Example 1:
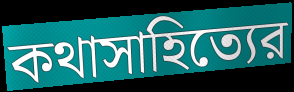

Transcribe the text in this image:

কথাসাহিত্যের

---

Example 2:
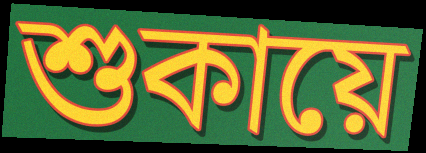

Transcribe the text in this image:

শুকায়ে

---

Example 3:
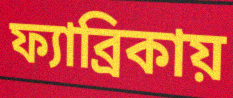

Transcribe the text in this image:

ফ্যাব্রিকায়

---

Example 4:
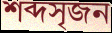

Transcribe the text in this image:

শব্দসৃজন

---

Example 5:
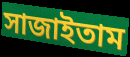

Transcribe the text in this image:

সাজাইতাম